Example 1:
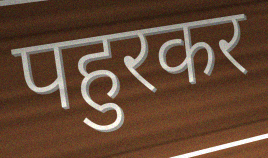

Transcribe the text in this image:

पहुरकर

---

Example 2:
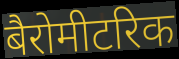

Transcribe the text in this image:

बैरोमीटरिक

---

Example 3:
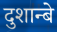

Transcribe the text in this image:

दुशान्बे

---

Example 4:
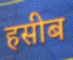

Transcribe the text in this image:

हसीब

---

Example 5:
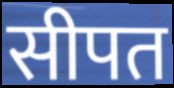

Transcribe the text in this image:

सीपत